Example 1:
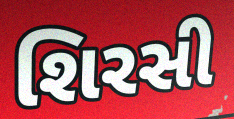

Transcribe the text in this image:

શિરસી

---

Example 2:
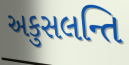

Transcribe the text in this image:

અકુસલન્તિ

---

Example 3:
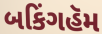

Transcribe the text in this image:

બકિંગહૅમ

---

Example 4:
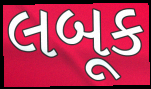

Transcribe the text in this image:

લબૂક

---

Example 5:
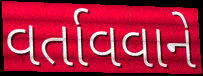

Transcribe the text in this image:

વર્તાવવાને